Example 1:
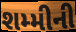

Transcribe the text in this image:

શમ્મીની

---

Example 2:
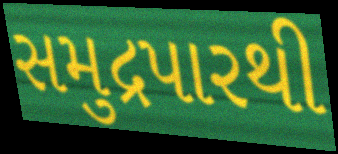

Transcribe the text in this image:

સમુદ્રપારથી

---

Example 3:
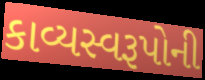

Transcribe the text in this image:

કાવ્યસ્વરૂપોની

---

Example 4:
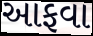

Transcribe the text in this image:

આફવા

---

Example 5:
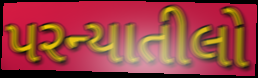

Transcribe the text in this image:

પરન્યાતીલો